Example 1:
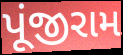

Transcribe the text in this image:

પૂંજીરામ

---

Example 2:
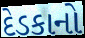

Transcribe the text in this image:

દેડકાનો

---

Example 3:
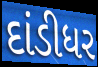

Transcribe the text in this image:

દાંડીધર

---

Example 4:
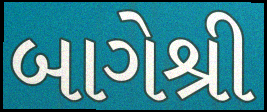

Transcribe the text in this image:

બાગેશ્રી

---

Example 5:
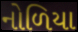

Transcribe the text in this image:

નોળિયા